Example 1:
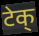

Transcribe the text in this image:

टेक्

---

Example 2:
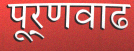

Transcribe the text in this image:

पूर्णवाढ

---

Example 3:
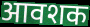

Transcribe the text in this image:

आवशक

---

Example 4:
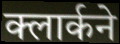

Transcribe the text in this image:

क्लार्कने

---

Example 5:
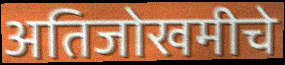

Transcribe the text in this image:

अतिजोखमीचे